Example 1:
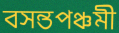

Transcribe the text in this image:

বসন্তপঞ্চমী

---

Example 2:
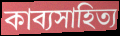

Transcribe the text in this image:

কাব্যসাহিত্য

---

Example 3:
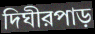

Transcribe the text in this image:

দিঘীরপাড়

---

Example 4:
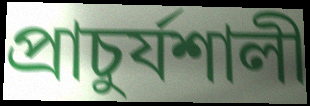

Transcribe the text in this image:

প্রাচুর্যশালী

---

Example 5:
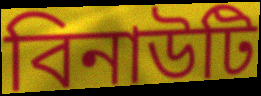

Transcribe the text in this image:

বিনাউটি